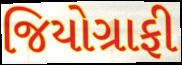
જિયોગ્રાફી